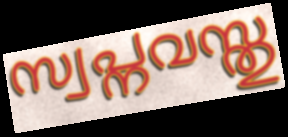
സ്വപ്നവസ്തു